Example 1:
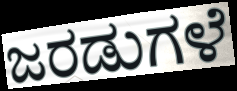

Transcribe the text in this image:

ಜರಡುಗಳೆ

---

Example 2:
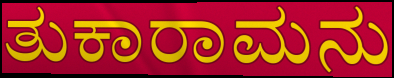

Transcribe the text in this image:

ತುಕಾರಾಮನು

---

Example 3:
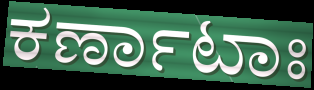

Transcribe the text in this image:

ಕರ್ಣಾಟಾಃ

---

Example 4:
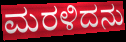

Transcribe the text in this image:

ಮರಳಿದನು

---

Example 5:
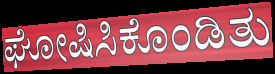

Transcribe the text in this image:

ಘೋಷಿಸಿಕೊಂಡಿತು